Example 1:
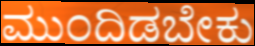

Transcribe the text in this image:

ಮುಂದಿಡಬೇಕು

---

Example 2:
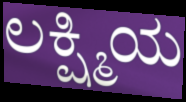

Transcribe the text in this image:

ಲಕ್ಷ್ಮಿಯ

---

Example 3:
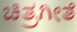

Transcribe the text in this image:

ಚಿತ್ರಗೀತೆ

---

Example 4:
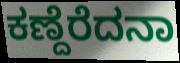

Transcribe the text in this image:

ಕಣ್ದೆರೆದನಾ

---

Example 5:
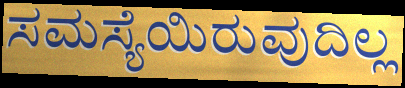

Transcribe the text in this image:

ಸಮಸ್ಯೆಯಿರುವುದಿಲ್ಲ